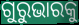
ଗୁରୁଭାରକୁ